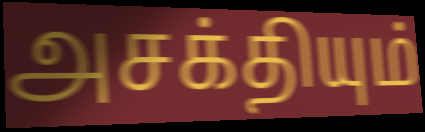
அசக்தியும்